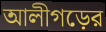
আলীগড়ের